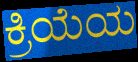
ಕ್ರಿಯೆಯ